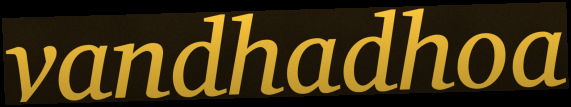
vandhadhoa